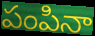
పంపినా